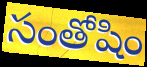
సంతోషిం